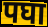
पघा